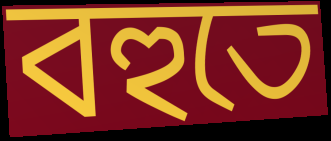
বহুতে